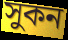
সুকন